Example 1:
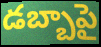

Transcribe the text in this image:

డబ్బాపై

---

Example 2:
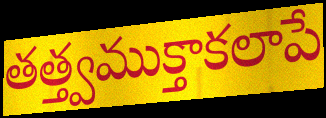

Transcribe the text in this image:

తత్త్వముక్తాకలాపే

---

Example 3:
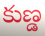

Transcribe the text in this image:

కుణ్డ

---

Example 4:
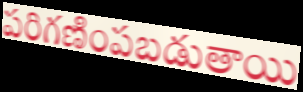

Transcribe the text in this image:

పరిగణింపబడుతాయి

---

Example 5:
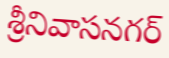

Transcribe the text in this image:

శ్రీనివాసనగర్